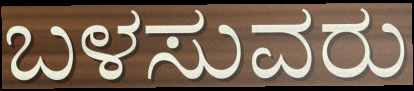
ಬಳಸುವರು